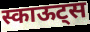
स्काऊट्स